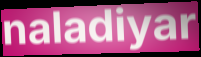
naladiyar